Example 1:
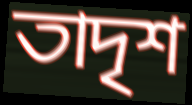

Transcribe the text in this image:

তাদৃশ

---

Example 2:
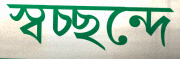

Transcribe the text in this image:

স্বচ্ছন্দে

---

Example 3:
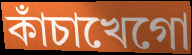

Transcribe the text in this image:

কাঁচাখেগো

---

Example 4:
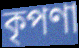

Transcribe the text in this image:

কৃপণা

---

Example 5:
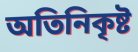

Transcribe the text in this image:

অতিনিকৃষ্ট